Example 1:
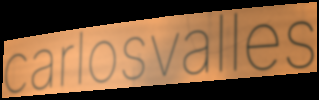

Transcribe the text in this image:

carlosvalles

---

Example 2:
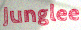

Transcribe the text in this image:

Junglee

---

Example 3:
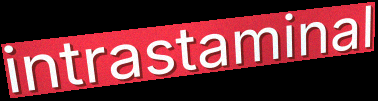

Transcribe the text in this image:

intrastaminal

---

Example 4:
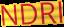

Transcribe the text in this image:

NDRI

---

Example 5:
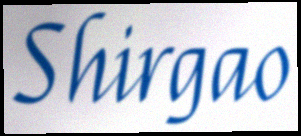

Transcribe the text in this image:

Shirgao